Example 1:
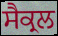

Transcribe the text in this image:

ਸੈਕ੍ਰਲ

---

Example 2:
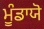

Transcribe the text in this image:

ਮੂੰਡਾਯੋ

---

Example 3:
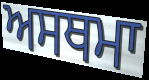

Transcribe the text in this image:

ਅਸਥਮਾ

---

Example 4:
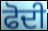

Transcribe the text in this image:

ਫੋਦੀ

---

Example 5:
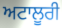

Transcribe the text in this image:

ਅਟਾਲੂਰੀ